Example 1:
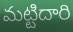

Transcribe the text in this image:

మట్టిదారి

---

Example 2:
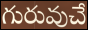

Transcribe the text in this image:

గురువుచే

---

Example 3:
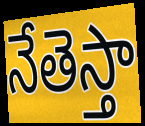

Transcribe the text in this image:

నేతెస్తా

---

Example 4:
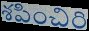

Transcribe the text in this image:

శపించిరి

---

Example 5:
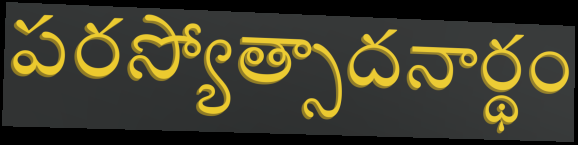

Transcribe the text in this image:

పరస్యోత్సాదనార్థం